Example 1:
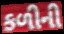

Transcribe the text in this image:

કળીની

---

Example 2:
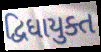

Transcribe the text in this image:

દ્વિધાયુક્ત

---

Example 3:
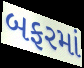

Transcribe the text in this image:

બફરમાં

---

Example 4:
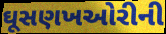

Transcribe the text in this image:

ઘૂસણખઓરીની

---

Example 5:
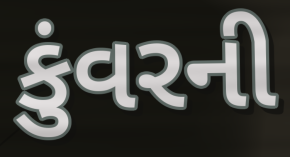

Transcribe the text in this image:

કુંવરની